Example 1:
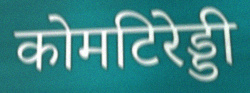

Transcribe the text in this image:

कोमटिरेड्डी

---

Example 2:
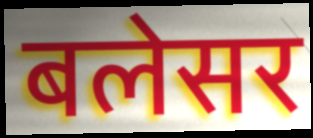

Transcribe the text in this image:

बलेसर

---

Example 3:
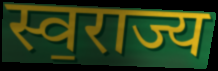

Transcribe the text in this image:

स्व॒राज्य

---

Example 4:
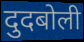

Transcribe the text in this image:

दुदबोली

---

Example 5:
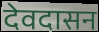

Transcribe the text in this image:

देवदासन